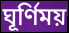
ঘূর্ণিময়